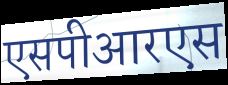
एसपीआरएस